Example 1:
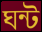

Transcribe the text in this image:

ঘন্ট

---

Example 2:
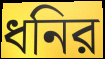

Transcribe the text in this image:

ধনির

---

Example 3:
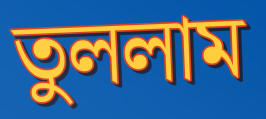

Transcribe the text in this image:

তুললাম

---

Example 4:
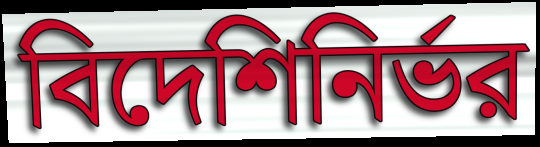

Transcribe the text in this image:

বিদেশিনির্ভর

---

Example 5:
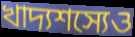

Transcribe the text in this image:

খাদ্যশস্যেও